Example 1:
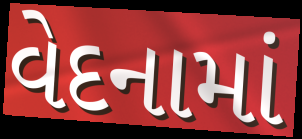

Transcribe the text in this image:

વેદનામાં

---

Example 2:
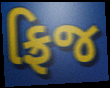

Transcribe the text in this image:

ફ્રિજ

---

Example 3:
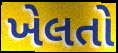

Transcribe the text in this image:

ખેલતો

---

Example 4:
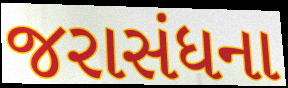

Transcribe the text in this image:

જરાસંધના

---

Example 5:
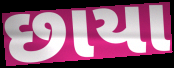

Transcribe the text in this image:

છાયા